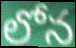
లోన